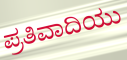
ಪ್ರತಿವಾದಿಯು